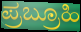
ಪ್ರಬ್ರೂಹಿ